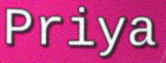
Priya